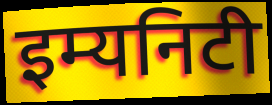
इम्यनिटी